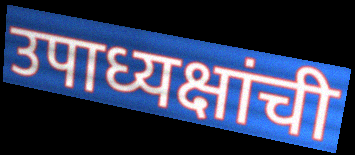
उपाध्यक्षांची